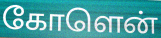
கோளென்